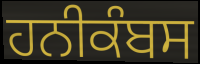
ਹਨੀਕੰਬਸ